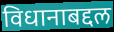
विधानाबद्दल